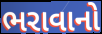
ભરાવાનો